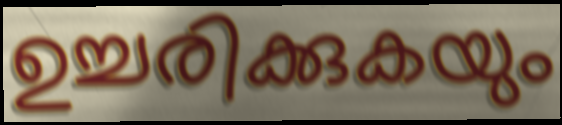
ഉച്ചരിക്കുകയും